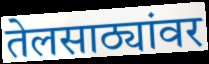
तेलसाठ्यांवर